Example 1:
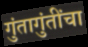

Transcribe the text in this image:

गुंतागुंतींचा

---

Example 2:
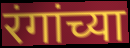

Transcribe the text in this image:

रंगांच्या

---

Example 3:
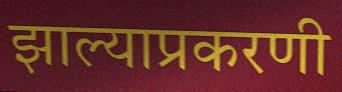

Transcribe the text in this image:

झाल्याप्रकरणी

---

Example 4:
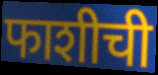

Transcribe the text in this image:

फाशीची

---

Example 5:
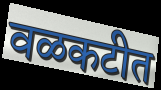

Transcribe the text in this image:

वळकटीत